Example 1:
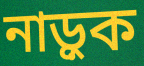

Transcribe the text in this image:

নাড়ুক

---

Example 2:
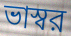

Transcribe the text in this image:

ভাস্বর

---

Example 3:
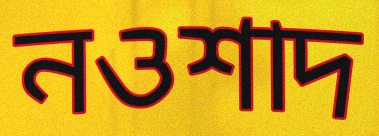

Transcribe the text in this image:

নওশাদ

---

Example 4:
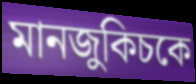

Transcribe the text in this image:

মানজুকিচকে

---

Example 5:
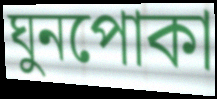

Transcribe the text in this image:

ঘুনপোকা